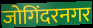
जोगिंदरनगर